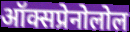
ऑक्सप्रेनोलोल